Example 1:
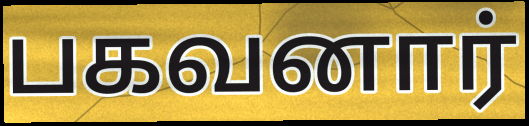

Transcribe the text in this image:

பகவனார்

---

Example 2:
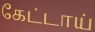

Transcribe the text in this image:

கேட்டாய்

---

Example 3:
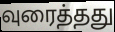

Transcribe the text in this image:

வுரைத்தது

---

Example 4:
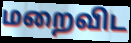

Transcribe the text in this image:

மறைவிட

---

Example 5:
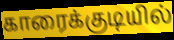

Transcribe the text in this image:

காரைக்குடியில்